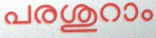
പരശുറാം